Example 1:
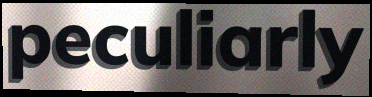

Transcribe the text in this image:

peculiarly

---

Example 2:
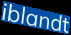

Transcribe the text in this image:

iblandt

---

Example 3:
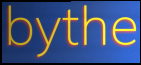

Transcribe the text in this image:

bythe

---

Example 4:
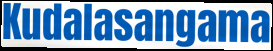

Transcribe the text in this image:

Kudalasangama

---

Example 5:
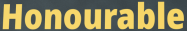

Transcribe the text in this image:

Honourable